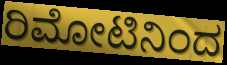
ರಿಮೋಟಿನಿಂದ